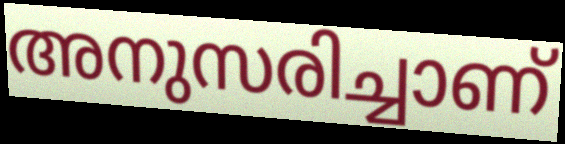
അനുസരിച്ചാണ്